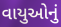
વાયુઓનું